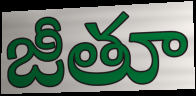
జీతూ